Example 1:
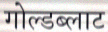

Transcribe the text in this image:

गोल्डब्लाट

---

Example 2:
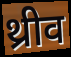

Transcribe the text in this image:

थ्रीव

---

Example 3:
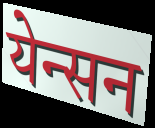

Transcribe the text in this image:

येन्सन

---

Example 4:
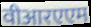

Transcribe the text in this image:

वीआरएएम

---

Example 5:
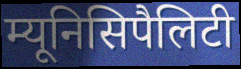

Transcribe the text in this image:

म्यूनिसिपैलिटी